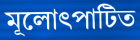
মূলোৎপাটিত